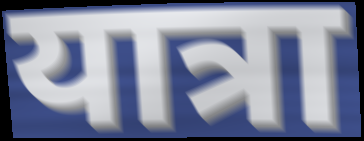
यात्रा